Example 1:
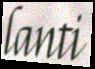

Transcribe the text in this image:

lanti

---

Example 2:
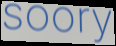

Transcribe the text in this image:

soory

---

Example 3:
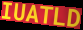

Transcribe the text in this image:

IUATLD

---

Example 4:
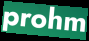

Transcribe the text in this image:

prohm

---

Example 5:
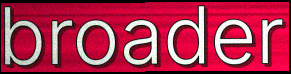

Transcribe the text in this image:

broader